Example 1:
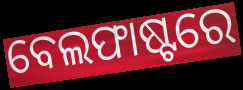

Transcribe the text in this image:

ବେଲଫାଷ୍ଟରେ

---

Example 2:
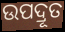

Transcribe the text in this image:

ଉପଦ୍ରୂତ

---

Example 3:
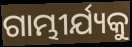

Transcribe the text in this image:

ଗାମ୍ଭୀର୍ଯ୍ୟକୁ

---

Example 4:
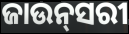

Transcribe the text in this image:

ଜାଉନ୍‌ସରୀ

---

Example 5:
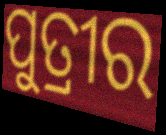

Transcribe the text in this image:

ପୁତ୍ରୀର